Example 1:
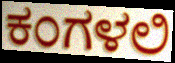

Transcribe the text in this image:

ಕಂಗಳಲಿ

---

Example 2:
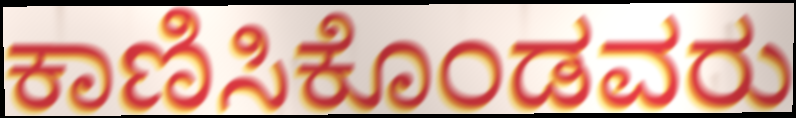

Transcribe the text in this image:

ಕಾಣಿಸಿಕೊಂಡವರು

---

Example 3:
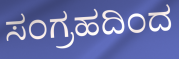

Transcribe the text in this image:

ಸಂಗ್ರಹದಿಂದ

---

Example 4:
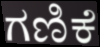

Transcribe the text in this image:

ಗಣಿಕೆ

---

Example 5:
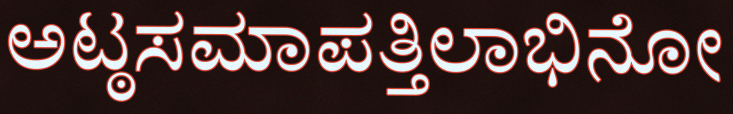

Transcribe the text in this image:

ಅಟ್ಠಸಮಾಪತ್ತಿಲಾಭಿನೋ